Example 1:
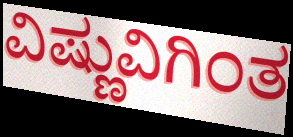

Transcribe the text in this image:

ವಿಷ್ಣುವಿಗಿಂತ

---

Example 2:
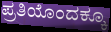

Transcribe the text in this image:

ಪ್ರತಿಯೊಂದಕ್ಕೂ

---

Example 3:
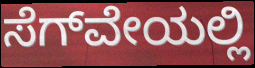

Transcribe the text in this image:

ಸೆಗ್‌ವೇಯಲ್ಲಿ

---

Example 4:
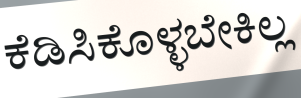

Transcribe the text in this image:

ಕೆಡಿಸಿಕೊಳ್ಳಬೇಕಿಲ್ಲ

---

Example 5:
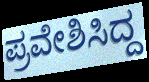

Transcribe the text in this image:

ಪ್ರವೇಶಿಸಿದ್ದ